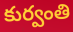
కుర్వంతి